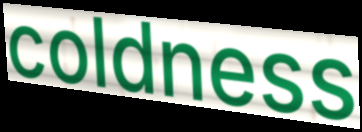
coldness